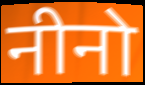
नीनो